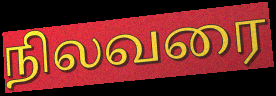
நிலவரை